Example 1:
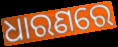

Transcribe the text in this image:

ଧାରଣରେ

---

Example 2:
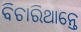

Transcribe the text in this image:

ବିଚାରିଥାନ୍ତେ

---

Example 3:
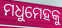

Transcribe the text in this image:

ମଧୁମେହକୁ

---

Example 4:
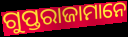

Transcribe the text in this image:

ଗୁପ୍ତରାଜାମାନେ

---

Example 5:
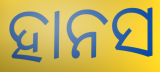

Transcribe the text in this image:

ହାନସ